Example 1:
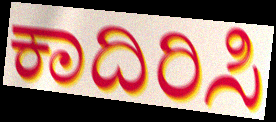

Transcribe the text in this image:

ಕಾದಿರಿಸಿ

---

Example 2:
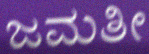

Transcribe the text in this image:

ಜಮತೀ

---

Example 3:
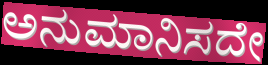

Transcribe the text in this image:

ಅನುಮಾನಿಸದೇ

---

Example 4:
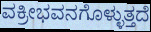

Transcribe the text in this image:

ವಕ್ರೀಭವನಗೊಳ್ಳುತ್ತದೆ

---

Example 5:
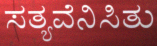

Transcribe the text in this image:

ಸತ್ಯವೆನಿಸಿತು